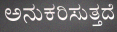
ಅನುಕರಿಸುತ್ತದೆ